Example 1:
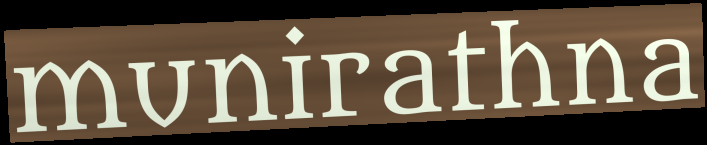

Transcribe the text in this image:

munirathna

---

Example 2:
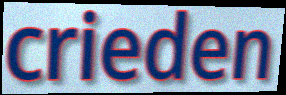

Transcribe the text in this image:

crieden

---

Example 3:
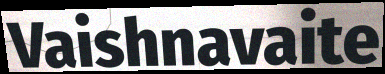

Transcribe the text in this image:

Vaishnavaite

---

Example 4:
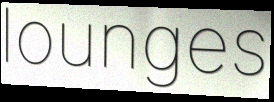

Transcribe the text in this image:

lounges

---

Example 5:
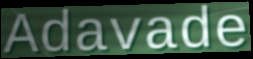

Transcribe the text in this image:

Adavade